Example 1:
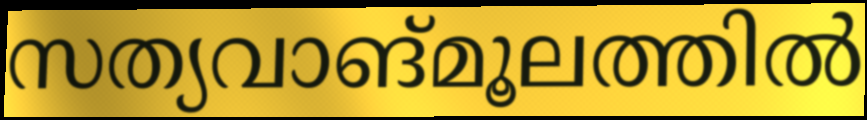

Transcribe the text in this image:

സത്യവാങ്മൂലത്തിൽ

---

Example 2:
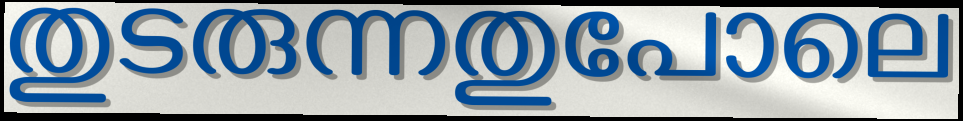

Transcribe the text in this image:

തുടരുന്നതുപോലെ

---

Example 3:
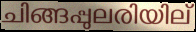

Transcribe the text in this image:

ചിങ്ങപ്പുലരിയില്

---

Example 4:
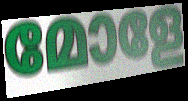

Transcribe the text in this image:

മോളേ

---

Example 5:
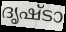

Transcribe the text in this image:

ദൃഷ്ടാ